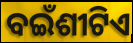
ବଇଁଶୀଟିଏ